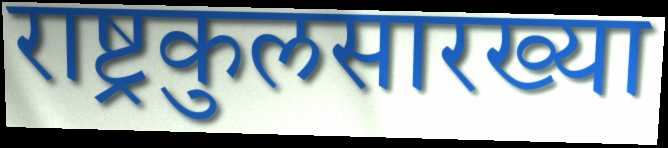
राष्ट्रकुलसारख्या